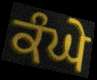
ਕੰਘੇ